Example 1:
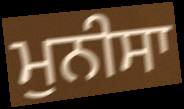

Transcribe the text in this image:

ਮੁਨੀਸਾ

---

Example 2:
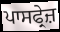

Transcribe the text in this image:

ਪਾਸਫ੍ਰੇਜ਼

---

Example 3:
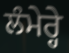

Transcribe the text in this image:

ਲੰਮੇਰ੍ਹੇ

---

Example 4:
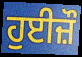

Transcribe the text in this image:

ਹੁਈਜ਼ੌ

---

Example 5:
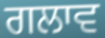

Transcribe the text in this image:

ਗਲਾਵ